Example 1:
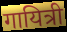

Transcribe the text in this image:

गायित्री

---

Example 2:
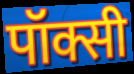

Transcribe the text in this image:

पॉक्सी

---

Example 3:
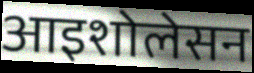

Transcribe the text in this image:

आइशोलेसन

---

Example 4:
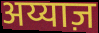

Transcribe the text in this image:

अय्याज़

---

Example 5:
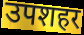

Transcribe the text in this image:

उपशहर